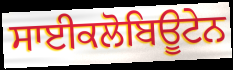
ਸਾਈਕਲੋਬਿਊਟੇਨ